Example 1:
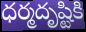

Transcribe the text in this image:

ధర్మదృష్టికి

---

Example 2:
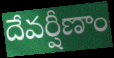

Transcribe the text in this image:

దేవర్షీణాం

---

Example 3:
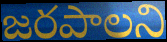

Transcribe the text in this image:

జరపాలని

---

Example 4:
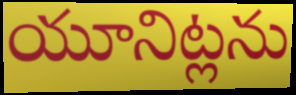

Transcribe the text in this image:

యూనిట్లను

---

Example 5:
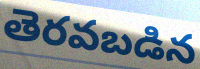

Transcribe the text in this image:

తెరవబడిన